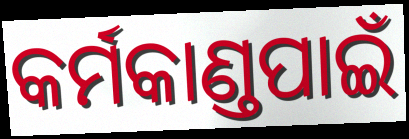
କର୍ମକାଣ୍ଡପାଇଁ